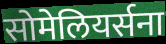
सोमेलियर्सना